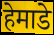
हेमाडे